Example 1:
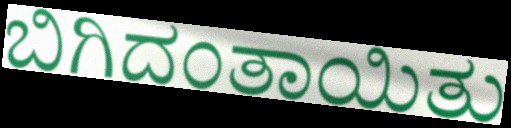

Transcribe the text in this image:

ಬಿಗಿದಂತಾಯಿತು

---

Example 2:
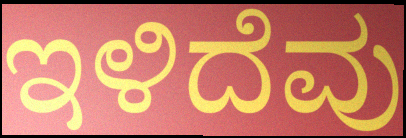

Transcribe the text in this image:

ಇಳಿದೆವು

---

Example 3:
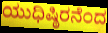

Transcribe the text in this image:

ಯುಧಿಷ್ಠಿರನೆಂದ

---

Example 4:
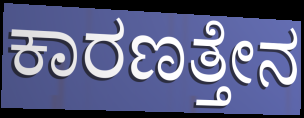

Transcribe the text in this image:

ಕಾರಣತ್ತೇನ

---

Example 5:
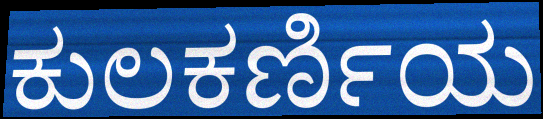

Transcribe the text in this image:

ಕುಲಕರ್ಣಿಯ